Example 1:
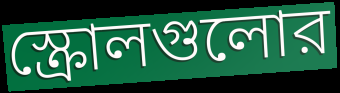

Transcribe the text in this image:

স্ক্রোলগুলোর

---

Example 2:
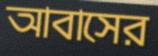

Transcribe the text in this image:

আবাসের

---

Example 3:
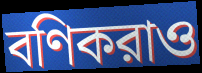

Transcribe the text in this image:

বণিকরাও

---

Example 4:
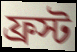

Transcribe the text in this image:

ফ্রস্ট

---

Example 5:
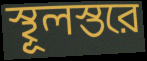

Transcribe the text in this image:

স্থূলস্তরে